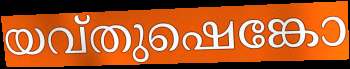
യവ്തുഷെങ്കോ